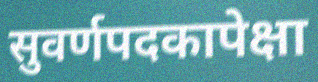
सुवर्णपदकापेक्षा